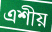
এশীয়